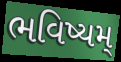
ભવિષ્યમ્